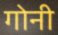
गोनी